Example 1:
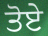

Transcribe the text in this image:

ਤੋਏ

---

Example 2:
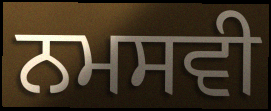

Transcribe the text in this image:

ਨਮਸਵੀ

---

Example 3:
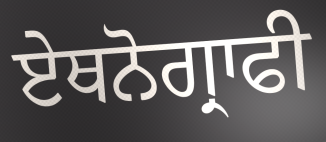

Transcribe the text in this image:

ਏਥਨੋਗ੍ਰਾਫੀ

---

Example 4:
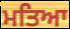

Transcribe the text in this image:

ਮਤਿਆ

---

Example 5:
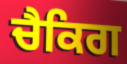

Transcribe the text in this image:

ਚੈਕਿਗ